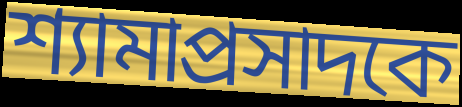
শ্যামাপ্রসাদকে